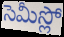
సెమీస్లో